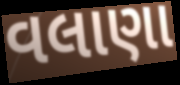
વલાણા